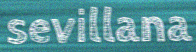
sevillana